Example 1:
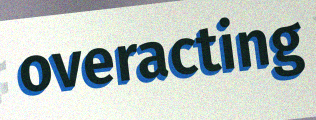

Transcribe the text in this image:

overacting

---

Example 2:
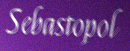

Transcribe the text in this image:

Sebastopol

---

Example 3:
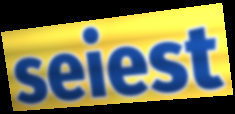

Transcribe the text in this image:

seiest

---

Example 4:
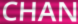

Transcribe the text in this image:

CHAN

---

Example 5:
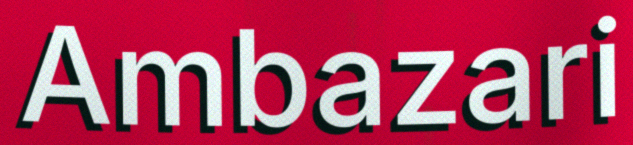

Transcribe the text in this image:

Ambazari